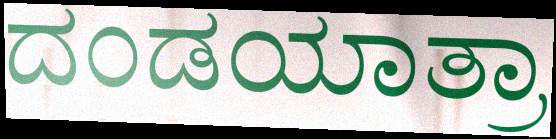
ದಂಡಯಾತ್ರಾ